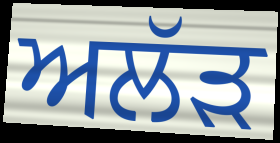
ਅਲੱੜ